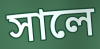
সালে